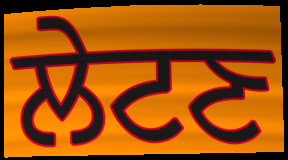
ਲੇਟਣ